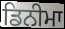
ਡਿਨੀਮਾ